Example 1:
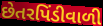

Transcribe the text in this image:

છેતરપિંડીવાળી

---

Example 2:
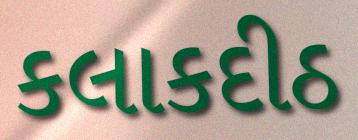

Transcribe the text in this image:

કલાકદીઠ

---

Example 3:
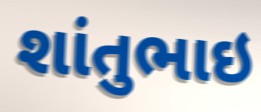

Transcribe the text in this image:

શાંતુભાઇ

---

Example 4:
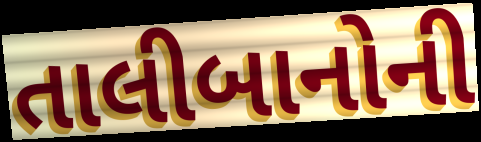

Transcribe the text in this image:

તાલીબાનોની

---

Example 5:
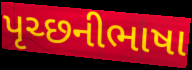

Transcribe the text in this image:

પૃચ્છનીભાષા